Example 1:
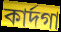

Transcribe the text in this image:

কাৰ্দগা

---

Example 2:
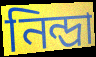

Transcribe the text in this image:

নিন্দ্ৰা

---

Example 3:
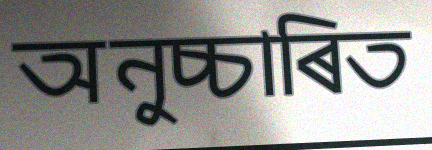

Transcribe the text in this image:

অনুচ্চাৰিত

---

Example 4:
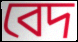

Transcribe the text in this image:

বেদ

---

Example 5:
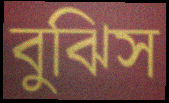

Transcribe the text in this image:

বুঝিস